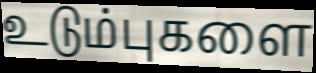
உடும்புகளை